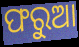
ଫରୁଆ